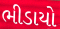
ભીડાયો